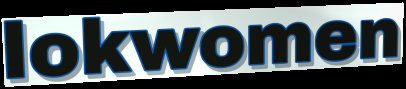
lokwomen